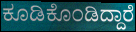
ಕೂಡಿಕೊಂಡಿದ್ದಾರೆ